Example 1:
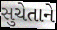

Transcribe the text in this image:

સુચેતાને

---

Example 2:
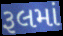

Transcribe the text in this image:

રૂલમાં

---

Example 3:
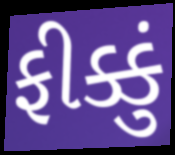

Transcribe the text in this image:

ફીક્કું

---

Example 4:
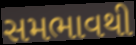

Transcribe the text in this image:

સમભાવથી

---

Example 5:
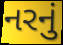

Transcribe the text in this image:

નરનું